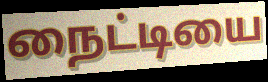
நைட்டியை